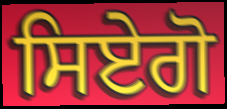
ਸਿਏਗੋ